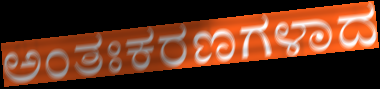
ಅಂತಃಕರಣಗಳಾದ